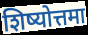
शिष्योत्तमा